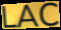
LAC